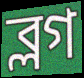
ব্লগ